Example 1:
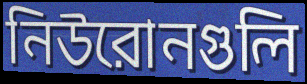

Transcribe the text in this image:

নিউরোনগুলি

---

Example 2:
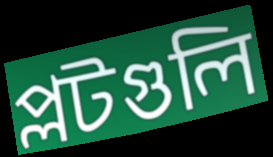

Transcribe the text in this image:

প্লটগুলি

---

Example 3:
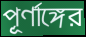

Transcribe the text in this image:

পূর্ণাঙ্গের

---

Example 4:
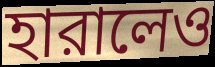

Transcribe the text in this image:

হারালেও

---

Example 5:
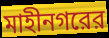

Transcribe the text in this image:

মাহীনগরের